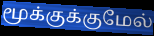
மூக்குக்குமேல்